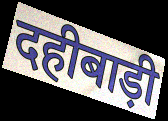
दहीबाड़ी